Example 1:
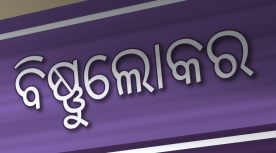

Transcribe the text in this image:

ବିଷ୍ଣୁଲୋକର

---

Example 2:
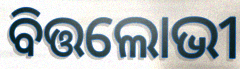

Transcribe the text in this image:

ବିତ୍ତଲୋଭୀ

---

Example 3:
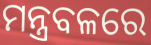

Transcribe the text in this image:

ମନ୍ତ୍ରବଳରେ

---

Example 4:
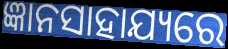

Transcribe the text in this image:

ଜ୍ଞାନସାହାଯ୍ୟରେ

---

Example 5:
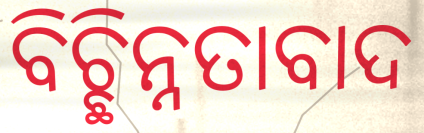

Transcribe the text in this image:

ବିଚ୍ଛିନ୍ନତାବାଦ